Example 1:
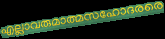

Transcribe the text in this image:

എല്ലാവരുമാത്മസഹോദരരെ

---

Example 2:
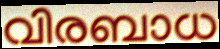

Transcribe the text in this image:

വിരബാധ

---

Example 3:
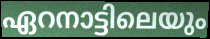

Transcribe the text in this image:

ഏറനാട്ടിലെയും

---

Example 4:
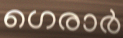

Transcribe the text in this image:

ഗെരാർ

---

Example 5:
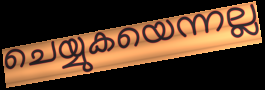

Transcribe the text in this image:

ചെയ്യുകയെന്നല്ല